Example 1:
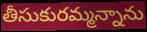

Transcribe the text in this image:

తీసుకురమ్మన్నాను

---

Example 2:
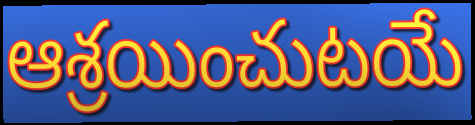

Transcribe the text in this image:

ఆశ్రయించుటయే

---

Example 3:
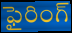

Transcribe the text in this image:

ఫైరింగ్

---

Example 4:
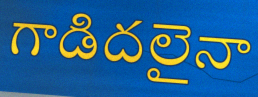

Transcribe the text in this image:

గాడిదలైనా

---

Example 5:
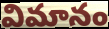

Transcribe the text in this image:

విమానం